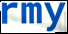
rmy